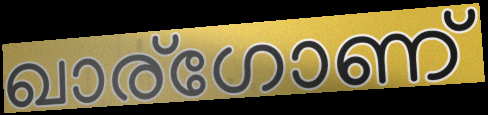
ഖാര്ഗോണ്